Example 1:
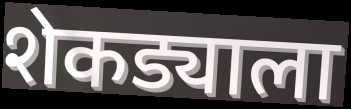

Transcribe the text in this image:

शेकड्याला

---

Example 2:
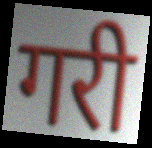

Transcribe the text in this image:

गरी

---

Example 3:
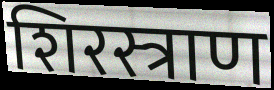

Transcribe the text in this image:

शिरस्त्राण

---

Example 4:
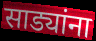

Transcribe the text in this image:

साड्यांना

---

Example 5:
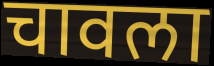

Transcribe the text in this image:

चावला